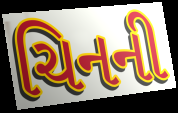
ચિનની